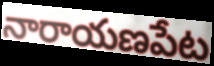
నారాయణపేట